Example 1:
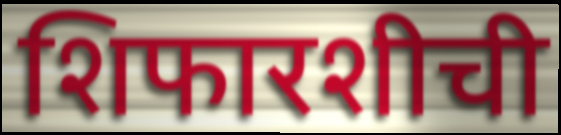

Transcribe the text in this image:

शिफारशीची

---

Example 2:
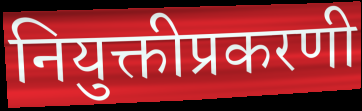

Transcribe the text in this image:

नियुक्तीप्रकरणी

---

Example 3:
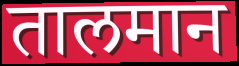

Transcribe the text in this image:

तालमान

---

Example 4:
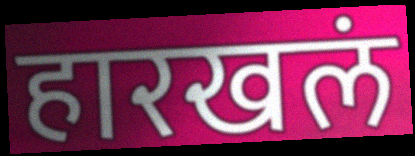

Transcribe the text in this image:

हारखलं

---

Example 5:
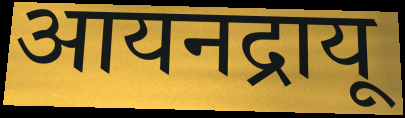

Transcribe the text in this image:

आयनद्रायू